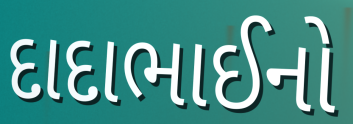
દાદાભાઈનો